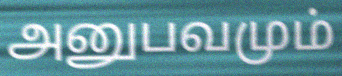
அனுபவமும்